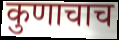
कुणाचाच